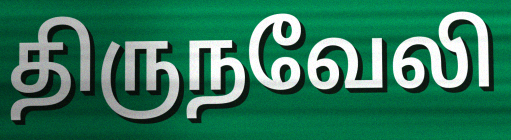
திருநவேலி